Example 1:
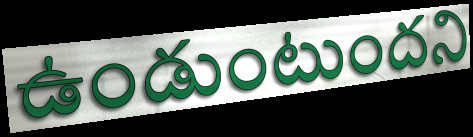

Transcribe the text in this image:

ఉండుంటుందని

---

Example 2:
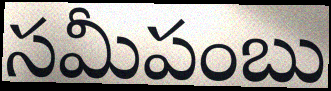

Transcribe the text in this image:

సమీపంబు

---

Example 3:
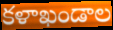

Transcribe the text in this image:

కళాఖండాల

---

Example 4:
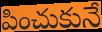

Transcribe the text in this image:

పించుకునే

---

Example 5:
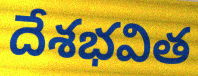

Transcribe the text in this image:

దేశభవిత